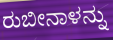
ರುಬೀನಾಳನ್ನು